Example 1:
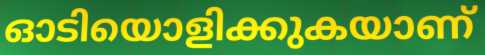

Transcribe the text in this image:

ഓടിയൊളിക്കുകയാണ്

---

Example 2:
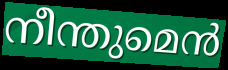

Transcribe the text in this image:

നീന്തുമെൻ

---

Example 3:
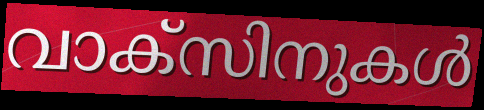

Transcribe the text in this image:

വാക്സിനുകൾ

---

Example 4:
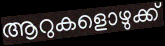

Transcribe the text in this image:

ആറുകളൊഴുക്ക്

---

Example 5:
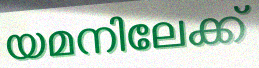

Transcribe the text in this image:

യമനിലേക്ക്